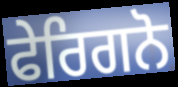
ਫੇਰਿਗਨੋ